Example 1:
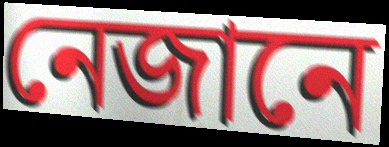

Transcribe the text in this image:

নেজানে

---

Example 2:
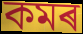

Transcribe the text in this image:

কমৰ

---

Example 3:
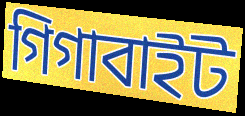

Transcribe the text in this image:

গিগাবাইট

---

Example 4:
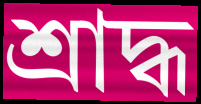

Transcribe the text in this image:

শ্ৰাদ্ধ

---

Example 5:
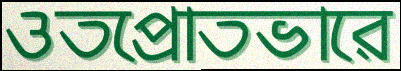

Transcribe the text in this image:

ওতপ্ৰোতভাৱে